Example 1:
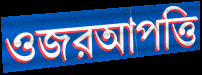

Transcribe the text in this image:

ওজরআপত্তি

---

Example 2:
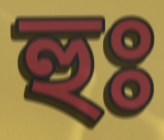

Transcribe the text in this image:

হুঃ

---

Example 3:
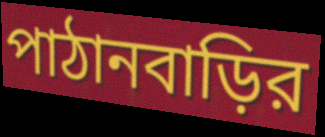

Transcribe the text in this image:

পাঠানবাড়ির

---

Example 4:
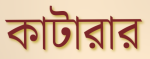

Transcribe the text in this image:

কাটারার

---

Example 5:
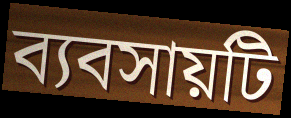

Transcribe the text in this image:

ব্যবসায়টি